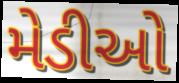
મેડીઓ